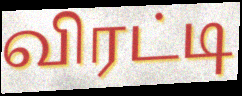
விரட்டி